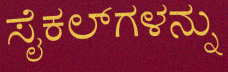
ಸೈಕಲ್‌ಗಳನ್ನು